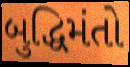
બુદ્ધિમંતો